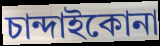
চান্দাইকোনা